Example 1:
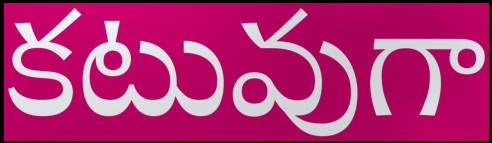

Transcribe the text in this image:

కటువుగా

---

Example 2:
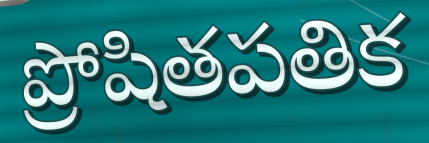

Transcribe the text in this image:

ప్రోషితపతిక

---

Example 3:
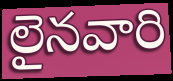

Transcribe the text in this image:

లైనవారి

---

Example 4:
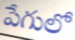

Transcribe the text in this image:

పేగులో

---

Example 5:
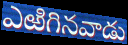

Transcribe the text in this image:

ఎఱిగినవాడు